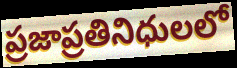
ప్రజాప్రతినిధులలో